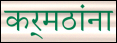
कर्मठांना